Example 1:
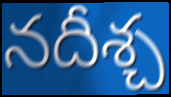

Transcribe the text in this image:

నదీశ్చ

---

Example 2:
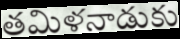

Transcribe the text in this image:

తమిళనాడుకు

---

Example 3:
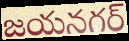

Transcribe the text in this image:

జయనగర్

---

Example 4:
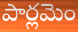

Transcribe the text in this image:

పార్లమెం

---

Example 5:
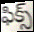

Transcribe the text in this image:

ఫిక్స్